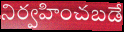
నిర్వహించబడే